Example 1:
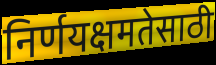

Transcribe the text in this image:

निर्णयक्षमतेसाठी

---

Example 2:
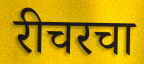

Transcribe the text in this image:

रीचरचा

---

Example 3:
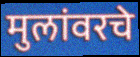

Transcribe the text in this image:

मुलांवरचे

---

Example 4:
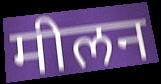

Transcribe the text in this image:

मीलन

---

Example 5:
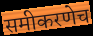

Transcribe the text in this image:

समीकरणेच